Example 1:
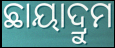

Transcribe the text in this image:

ଛାୟାଦ୍ରୁମ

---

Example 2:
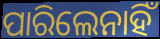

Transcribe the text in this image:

ପାରିଲେନାହିଁ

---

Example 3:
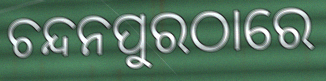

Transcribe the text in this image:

ଚନ୍ଦନପୁରଠାରେ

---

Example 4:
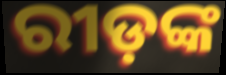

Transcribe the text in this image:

ରୀଡ଼ଙ୍କ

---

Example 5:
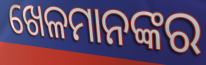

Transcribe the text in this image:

ଖେଳମାନଙ୍କର